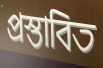
প্রস্তাবিত